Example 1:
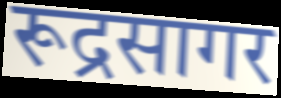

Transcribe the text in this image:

रूद्रसागर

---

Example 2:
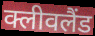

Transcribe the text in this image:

क्लीवलैंड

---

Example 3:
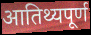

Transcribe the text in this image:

आतिथ्यपूर्ण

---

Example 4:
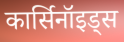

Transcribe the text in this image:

कार्सिनॉइड्स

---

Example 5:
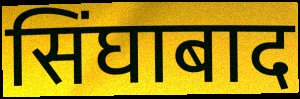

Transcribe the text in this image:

सिंघाबाद